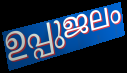
ഉപ്പുജലം